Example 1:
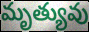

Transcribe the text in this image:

మృత్యువు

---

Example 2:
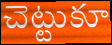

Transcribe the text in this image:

చెట్టుకూ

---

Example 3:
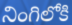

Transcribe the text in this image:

నింగిలోకి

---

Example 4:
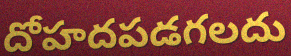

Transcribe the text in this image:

దోహదపడగలదు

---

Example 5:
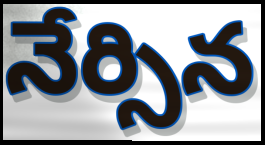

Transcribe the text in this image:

నేర్సిన